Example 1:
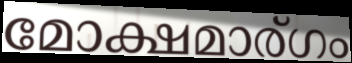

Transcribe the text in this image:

മോക്ഷമാര്ഗം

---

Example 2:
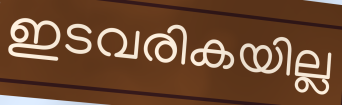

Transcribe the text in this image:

ഇടവരികയില്ല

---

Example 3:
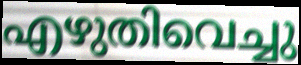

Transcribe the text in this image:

എഴുതിവെച്ചു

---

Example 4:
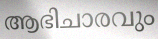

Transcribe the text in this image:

ആഭിചാരവും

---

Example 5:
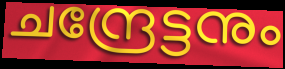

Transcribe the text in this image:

ചന്ദ്രേട്ടനും